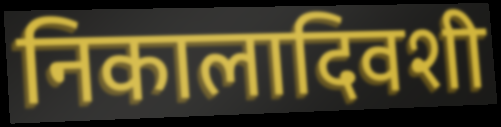
निकालादिवशी